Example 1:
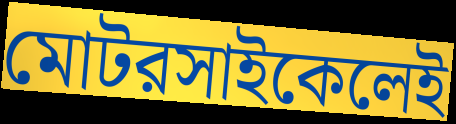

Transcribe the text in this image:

মোটরসাইকেলেই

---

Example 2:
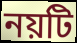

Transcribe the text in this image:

নয়টি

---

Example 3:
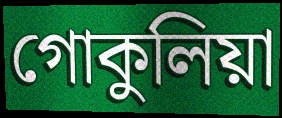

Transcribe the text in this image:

গোকুলিয়া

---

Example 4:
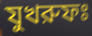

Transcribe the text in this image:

যুখরুফঃ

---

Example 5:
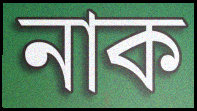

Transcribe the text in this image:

নাক